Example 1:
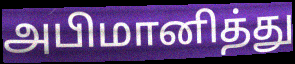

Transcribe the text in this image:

அபிமானித்து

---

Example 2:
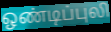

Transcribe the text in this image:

ஒண்டிப்புலி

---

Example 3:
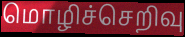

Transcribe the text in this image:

மொழிச்செறிவு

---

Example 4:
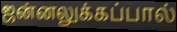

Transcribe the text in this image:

ஜன்னலுக்கப்பால்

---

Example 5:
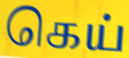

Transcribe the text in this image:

கெய்